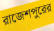
রাজেশপুরের